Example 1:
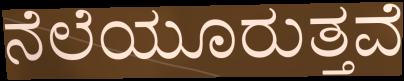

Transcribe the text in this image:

ನೆಲೆಯೂರುತ್ತವೆ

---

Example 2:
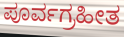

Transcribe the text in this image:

ಪೂರ್ವಗ್ರಹೀತ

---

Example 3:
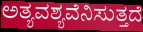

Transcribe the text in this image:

ಅತ್ಯವಶ್ಯವೆನಿಸುತ್ತದೆ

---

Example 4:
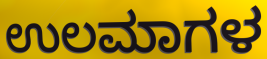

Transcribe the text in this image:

ಉಲಮಾಗಳ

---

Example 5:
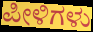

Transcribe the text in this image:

ಪೀಳಿಗಳು